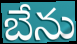
బేను